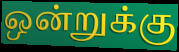
ஒன்றுக்கு